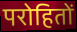
परोहितों